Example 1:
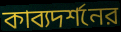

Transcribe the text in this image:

কাব্যদর্শনের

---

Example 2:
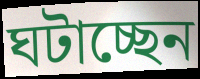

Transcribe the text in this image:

ঘটাচ্ছেন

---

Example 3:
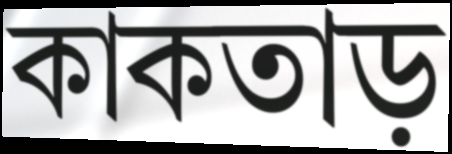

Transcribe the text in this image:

কাকতাড়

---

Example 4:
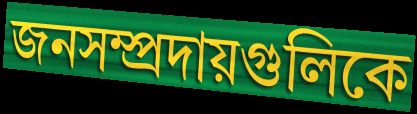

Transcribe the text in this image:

জনসম্প্রদায়গুলিকে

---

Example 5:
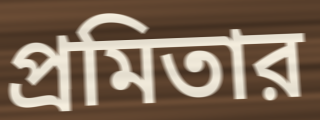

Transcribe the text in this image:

প্রমিতার